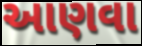
આણવા